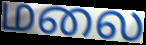
மலை